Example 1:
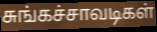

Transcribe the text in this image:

சுங்கச்சாவடிகள்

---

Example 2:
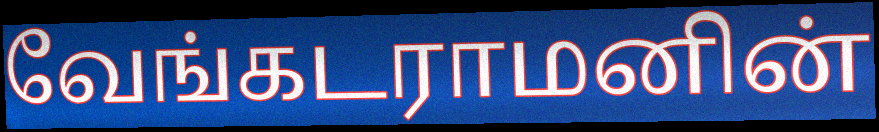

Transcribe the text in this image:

வேங்கடராமனின்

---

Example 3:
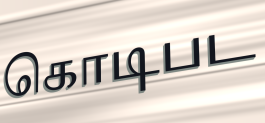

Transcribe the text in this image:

கொடிபட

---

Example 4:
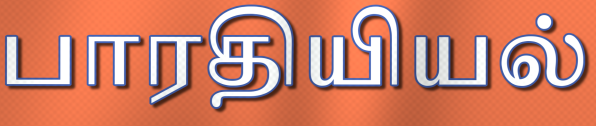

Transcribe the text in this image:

பாரதியியல்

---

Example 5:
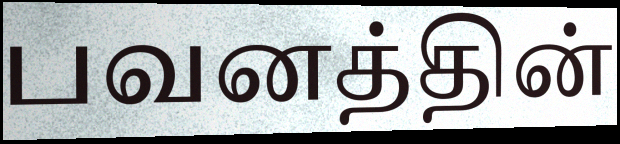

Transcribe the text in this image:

பவனத்தின்